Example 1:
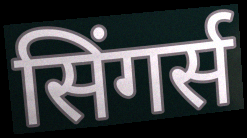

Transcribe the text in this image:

सिंगर्स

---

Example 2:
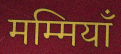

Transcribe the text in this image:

मम्मियाँ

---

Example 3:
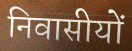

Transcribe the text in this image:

निवासीयों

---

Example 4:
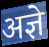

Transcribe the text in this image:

अज्ञे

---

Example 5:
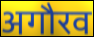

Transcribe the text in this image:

अगौरव